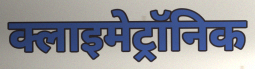
क्लाइमेट्रॉनिक